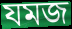
যমজ